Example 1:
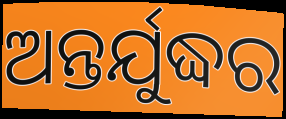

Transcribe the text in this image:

ଅନ୍ତର୍ଯୁଦ୍ଧର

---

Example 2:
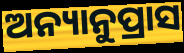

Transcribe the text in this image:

ଅନ୍ୟାନୁପ୍ରାସ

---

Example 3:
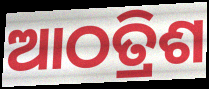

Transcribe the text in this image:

ଆଠତ୍ରିଶ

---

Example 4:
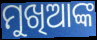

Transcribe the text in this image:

ମୁଖିଆଙ୍କ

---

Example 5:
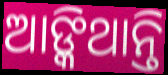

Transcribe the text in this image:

ଆଙ୍କିଥାନ୍ତି